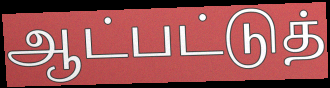
ஆட்பட்டுத்